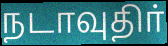
நடாவுதிர்